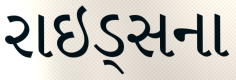
રાઇડ્સના